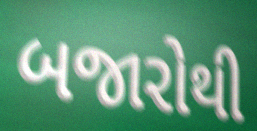
બજારોથી